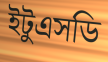
ইটুএসডি